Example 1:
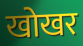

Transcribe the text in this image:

खोखर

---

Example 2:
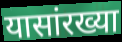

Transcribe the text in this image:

यासांरख्या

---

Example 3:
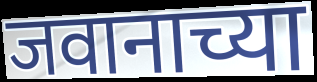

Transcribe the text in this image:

जवानाच्या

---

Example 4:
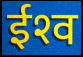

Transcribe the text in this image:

ईश्व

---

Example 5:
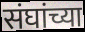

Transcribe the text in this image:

संघांच्या